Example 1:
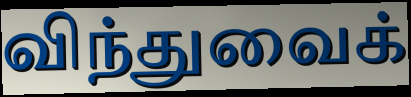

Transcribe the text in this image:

விந்துவைக்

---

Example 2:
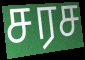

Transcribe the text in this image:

சரச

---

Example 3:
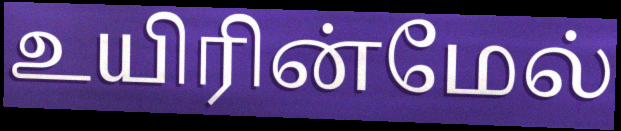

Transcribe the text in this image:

உயிரின்மேல்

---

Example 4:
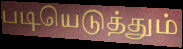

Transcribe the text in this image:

படியெடுத்தும்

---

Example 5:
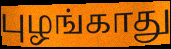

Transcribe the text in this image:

புழங்காது